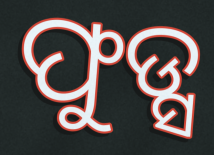
ଫୁଡ୍ସ